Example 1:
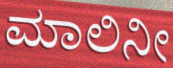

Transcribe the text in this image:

ಮಾಲಿನೀ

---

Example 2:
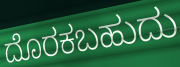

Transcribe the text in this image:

ದೊರಕಬಹುದು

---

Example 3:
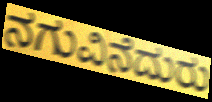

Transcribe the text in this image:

ನಗುವಿನೆದುರು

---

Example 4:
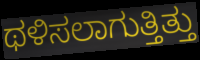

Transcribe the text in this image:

ಥಳಿಸಲಾಗುತ್ತಿತ್ತು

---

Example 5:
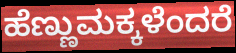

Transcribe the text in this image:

ಹೆಣ್ಣುಮಕ್ಕಳೆಂದರೆ